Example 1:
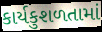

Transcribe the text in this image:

કાર્યકુશળતામાં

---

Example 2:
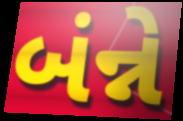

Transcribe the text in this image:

બંન્ને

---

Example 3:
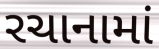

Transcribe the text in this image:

રચાનામાં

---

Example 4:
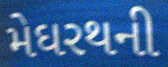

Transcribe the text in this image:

મેઘરથની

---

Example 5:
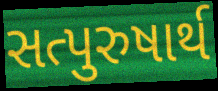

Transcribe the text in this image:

સત્પુરુષાર્થ